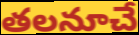
తలనూచే